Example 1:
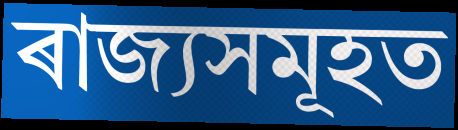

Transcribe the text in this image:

ৰাজ্যসমূহত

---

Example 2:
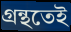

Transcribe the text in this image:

গ্ৰন্থতেই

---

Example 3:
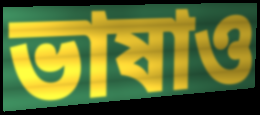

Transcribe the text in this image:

ভাষাও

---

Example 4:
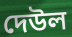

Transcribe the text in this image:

দেউল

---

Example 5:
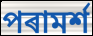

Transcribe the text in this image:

পৰামৰ্শ